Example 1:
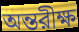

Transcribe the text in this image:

অন্তরীক্ষ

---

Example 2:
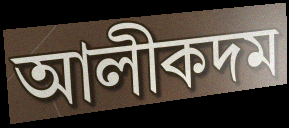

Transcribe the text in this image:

আলীকদম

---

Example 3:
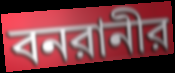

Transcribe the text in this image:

বনরানীর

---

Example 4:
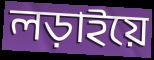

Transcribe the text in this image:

লড়াইয়ে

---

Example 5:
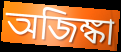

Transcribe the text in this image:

অজিঙ্কা